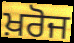
ਖ਼ਰੋਜ